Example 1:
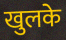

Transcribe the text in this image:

खुलके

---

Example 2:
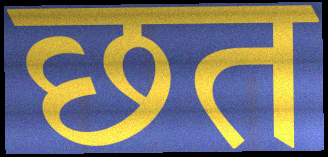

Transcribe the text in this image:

छत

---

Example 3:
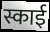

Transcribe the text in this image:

स्काई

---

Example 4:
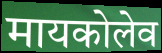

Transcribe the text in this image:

मायकोलेव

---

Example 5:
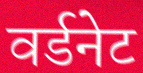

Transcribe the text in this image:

वर्डनेट